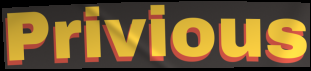
Privious